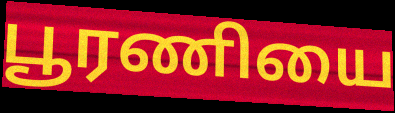
பூரணியை